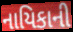
નાયિકાની